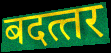
बदत्‍तर